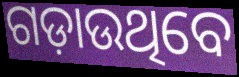
ଗଡ଼ାଉଥିବେ